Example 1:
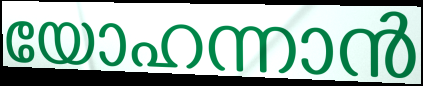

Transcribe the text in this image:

യോഹന്നാൻ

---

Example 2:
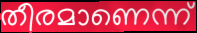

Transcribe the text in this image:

തീരമാണെന്ന്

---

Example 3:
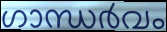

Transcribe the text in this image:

ഗാന്ധർവം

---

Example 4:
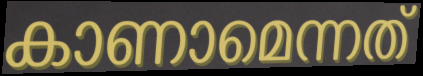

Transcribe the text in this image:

കാണാമെന്നത്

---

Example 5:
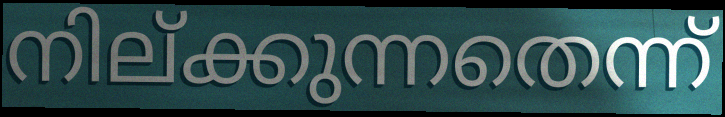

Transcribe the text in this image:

നില്ക്കുന്നതെന്ന്